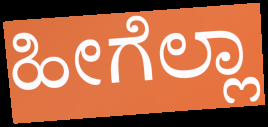
ಹೀಗೆಲ್ಲಾ